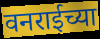
वनराईच्या